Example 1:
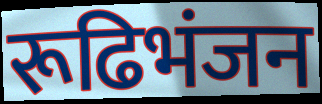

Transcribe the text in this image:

रूढिभंजन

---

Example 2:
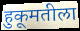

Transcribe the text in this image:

हुकूमतीला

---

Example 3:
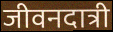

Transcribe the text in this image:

जीवनदात्री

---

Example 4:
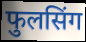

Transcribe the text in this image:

फुलसिंग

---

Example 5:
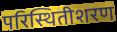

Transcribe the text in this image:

परिस्थितीशरण